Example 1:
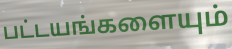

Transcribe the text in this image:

பட்டயங்களையும்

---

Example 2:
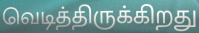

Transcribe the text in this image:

வெடித்திருக்கிறது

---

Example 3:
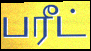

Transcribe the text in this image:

பரீட்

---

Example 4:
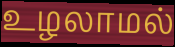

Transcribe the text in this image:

உழலாமல்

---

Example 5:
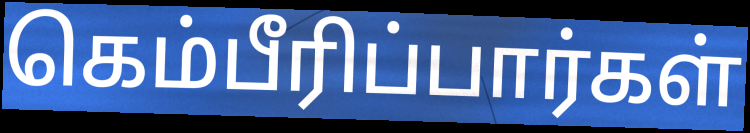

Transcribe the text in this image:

கெம்பீரிப்பார்கள்